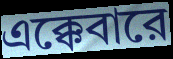
এক্কেবারে